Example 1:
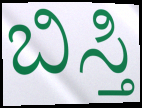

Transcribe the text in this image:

ಬಿಸ್ತಿ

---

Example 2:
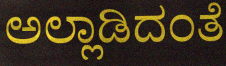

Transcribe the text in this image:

ಅಲ್ಲಾಡಿದಂತೆ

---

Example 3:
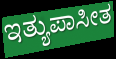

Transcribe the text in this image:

ಇತ್ಯುಪಾಸೀತ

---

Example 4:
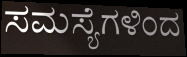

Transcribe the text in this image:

ಸಮಸ್ಯೆಗಳಿಂದ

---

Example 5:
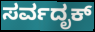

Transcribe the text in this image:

ಸರ್ವದೃಕ್